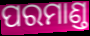
ପରମାଣ୍ଡ